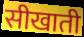
सीखाती